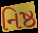
નિષ્ઠ